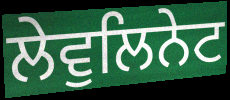
ਲੇਵੁਲਿਨੇਟ